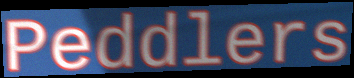
Peddlers